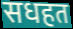
सधहत